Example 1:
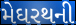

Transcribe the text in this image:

મેઘરથની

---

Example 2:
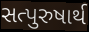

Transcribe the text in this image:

સત્પુરુષાર્થ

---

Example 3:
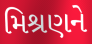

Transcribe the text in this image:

મિશ્રણને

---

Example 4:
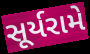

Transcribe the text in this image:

સૂર્યરામે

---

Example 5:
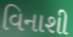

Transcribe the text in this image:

વિનાશી